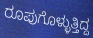
ರೂಪುಗೊಳ್ಳುತ್ತಿದ್ದ